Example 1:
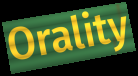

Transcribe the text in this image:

Orality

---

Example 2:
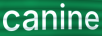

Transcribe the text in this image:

canine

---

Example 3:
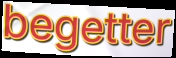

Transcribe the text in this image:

begetter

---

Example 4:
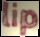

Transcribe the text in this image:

lip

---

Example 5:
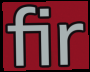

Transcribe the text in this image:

fir